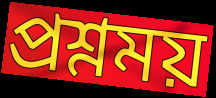
প্রশ্নময়